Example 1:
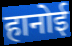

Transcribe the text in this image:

हानोई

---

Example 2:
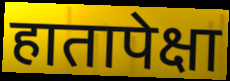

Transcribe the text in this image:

हातापेक्षा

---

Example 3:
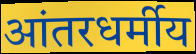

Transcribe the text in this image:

आंतरधर्मीय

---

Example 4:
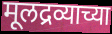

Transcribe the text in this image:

मूलद्रव्याच्या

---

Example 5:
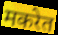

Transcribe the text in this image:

मकरेत